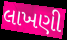
લાખણી